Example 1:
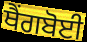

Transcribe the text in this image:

ਥੈਂਗਬੋਈ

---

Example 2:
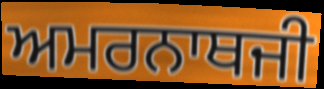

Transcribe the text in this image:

ਅਮਰਨਾਥਜੀ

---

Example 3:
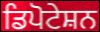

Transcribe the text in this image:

ਡਿਪੋਟੇਸ਼ਨ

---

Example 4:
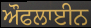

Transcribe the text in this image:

ਔਫਲਾਈਨ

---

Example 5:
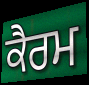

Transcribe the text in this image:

ਕੈਰਮ